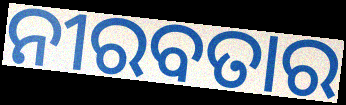
ନୀରବତାର